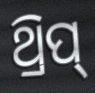
ଥ୍ରିପ୍